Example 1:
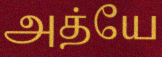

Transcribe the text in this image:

அத்யே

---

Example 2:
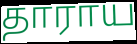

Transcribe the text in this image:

தாராய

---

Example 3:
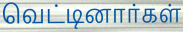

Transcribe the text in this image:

வெட்டினார்கள்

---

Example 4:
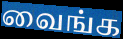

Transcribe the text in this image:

வைங்க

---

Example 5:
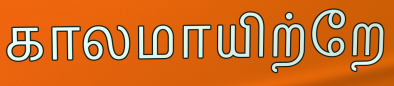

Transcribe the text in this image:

காலமாயிற்றே